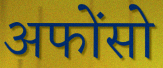
अफोंसो